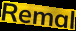
Remal